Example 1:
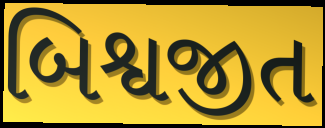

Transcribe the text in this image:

બિશ્વજીત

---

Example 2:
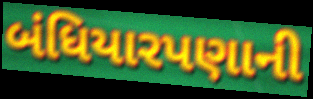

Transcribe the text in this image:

બંધિયારપણાની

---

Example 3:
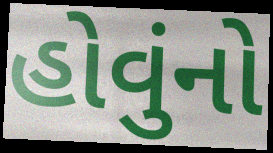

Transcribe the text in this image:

હોવુંનો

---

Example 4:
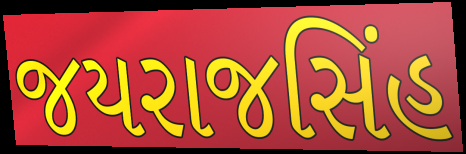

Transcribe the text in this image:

જયરાજસિંહ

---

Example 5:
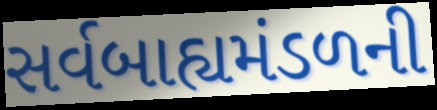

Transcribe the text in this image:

સર્વબાહ્યમંડળની